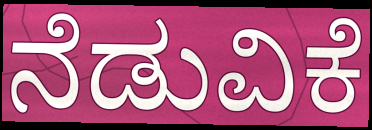
ನೆಡುವಿಕೆ